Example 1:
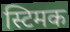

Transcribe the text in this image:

स्टिमक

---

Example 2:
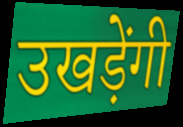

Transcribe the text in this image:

उखड़ेंगी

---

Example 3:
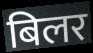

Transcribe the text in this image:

बिलर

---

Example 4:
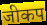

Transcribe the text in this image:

जीकप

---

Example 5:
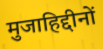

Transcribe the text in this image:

मुजाहिद्दीनों